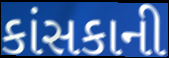
કાંસકાની